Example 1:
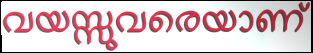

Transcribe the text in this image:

വയസ്സുവരെയാണ്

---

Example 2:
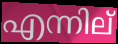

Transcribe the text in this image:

എന്നില്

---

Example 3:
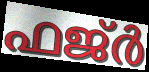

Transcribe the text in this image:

ഫജ്ർ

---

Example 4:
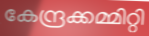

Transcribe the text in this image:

കേന്ദ്രക്കമ്മിറ്റി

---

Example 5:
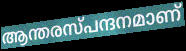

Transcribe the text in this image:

ആന്തരസ്പന്ദനമാണ്